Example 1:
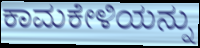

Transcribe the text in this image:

ಕಾಮಕೇಳಿಯನ್ನು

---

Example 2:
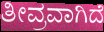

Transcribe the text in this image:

ತೀವ್ರವಾಗಿದೆ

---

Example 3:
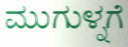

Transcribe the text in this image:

ಮುಗುಳ್ನಗೆ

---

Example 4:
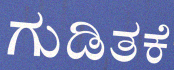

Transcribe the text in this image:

ಗುಡಿತಕೆ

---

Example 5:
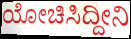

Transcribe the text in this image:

ಯೋಚಿಸಿದ್ದೀನಿ